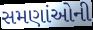
સમણાંઓની